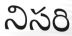
నిసరి